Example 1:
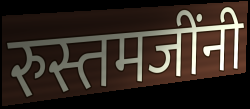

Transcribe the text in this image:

रुस्तमजींनी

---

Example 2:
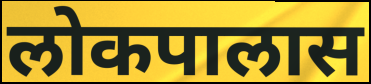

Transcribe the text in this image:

लोकपालास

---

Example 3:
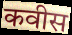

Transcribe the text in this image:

कवीस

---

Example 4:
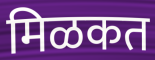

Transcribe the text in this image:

मिळकत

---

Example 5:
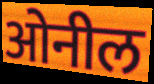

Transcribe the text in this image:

ओनील